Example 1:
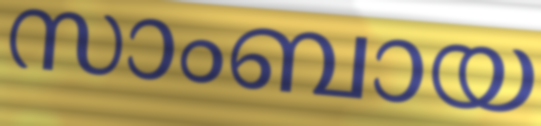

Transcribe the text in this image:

സാംബായ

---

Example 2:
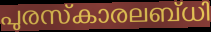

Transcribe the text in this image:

പുരസ്‌കാരലബ്ധി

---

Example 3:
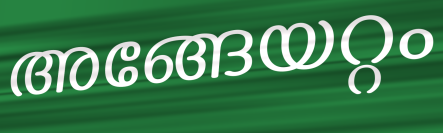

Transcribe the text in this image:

അങ്ങേയറ്റം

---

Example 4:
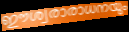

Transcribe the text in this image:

ഈശ്വരാരാധനയും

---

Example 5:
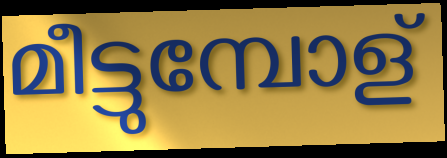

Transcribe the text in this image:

മീട്ടുമ്പോള്